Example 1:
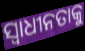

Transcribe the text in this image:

ସ୍ୱାଧୀନତାକୁ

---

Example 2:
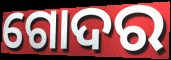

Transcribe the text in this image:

ଗୋଦର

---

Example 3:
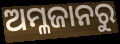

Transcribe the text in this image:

ଅମ୍ଳଜାନରୁ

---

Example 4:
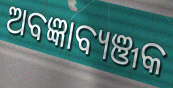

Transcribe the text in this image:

ଅବଜ୍ଞାବ୍ୟଞ୍ଜକ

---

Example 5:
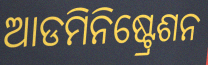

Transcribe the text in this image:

ଆଡମିନିଷ୍ଟ୍ରେଶନ